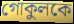
গোকুলকে